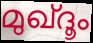
മുഖ്ദൂം